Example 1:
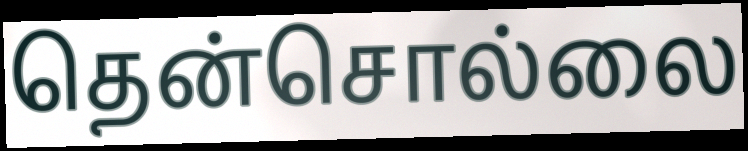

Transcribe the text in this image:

தென்சொல்லை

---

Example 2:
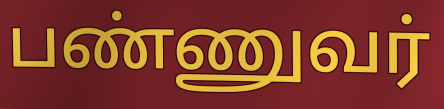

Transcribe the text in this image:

பண்ணுவர்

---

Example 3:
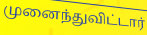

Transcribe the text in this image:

முனைந்துவிட்டார்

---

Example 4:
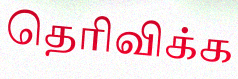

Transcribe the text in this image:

தெரிவிக்க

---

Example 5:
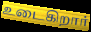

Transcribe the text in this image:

உடைகிறார்